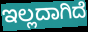
ಇಲ್ಲದಾಗಿದೆ